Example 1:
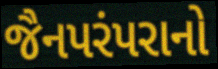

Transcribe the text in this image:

જૈનપરંપરાનો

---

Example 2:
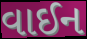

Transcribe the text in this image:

વાઈન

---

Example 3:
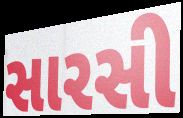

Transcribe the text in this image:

સારસી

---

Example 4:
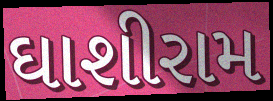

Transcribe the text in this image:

ઘાશીરામ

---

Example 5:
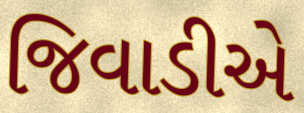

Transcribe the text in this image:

જિવાડીએ